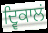
ਦ੍ਵਿਕਾਲਂ